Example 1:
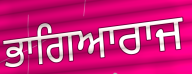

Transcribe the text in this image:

ਭਾਗਿਆਰਾਜ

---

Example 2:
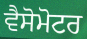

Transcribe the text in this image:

ਵੈਸੋਮੋਟਰ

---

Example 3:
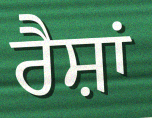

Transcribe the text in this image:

ਰੈਸ਼ਾਂ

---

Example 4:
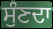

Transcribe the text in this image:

ਸੁੰਣਦਾ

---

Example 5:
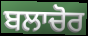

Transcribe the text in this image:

ਬਲਾਚੋਰ